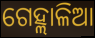
ଗେହ୍ଲାଳିଆ